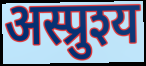
अस्प्रुश्य